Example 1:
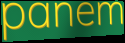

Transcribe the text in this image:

panem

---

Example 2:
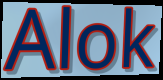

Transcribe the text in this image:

Alok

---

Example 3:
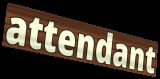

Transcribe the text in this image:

attendant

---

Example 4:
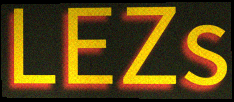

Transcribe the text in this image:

LEZs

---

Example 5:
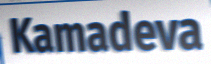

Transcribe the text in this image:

Kamadeva